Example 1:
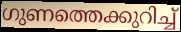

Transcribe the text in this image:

ഗുണത്തെക്കുറിച്ച്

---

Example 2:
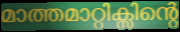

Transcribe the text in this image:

മാത്തമാറ്റിക്സിന്റെ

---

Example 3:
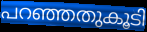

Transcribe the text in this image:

പറഞ്ഞതുകൂടി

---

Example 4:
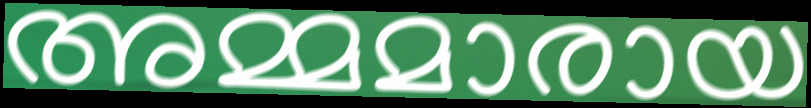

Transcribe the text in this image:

അമ്മമാരായ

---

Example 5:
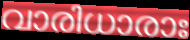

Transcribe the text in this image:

വാരിധാരാഃ